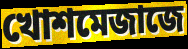
খোশমেজাজে